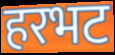
हरभट